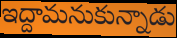
ఇద్దామనుకున్నాడు